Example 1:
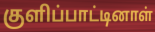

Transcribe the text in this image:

குளிப்பாட்டினாள்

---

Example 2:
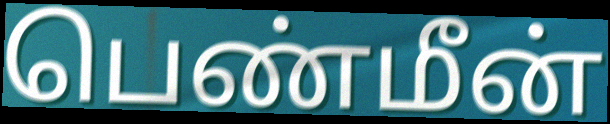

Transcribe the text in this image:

பெண்மீன்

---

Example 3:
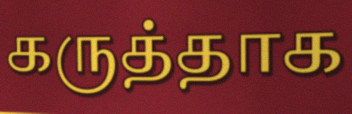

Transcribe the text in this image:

கருத்தாக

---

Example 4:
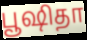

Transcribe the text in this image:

பூஷிதா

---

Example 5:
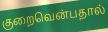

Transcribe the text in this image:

குறைவென்பதால்